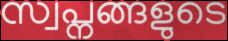
സ്വപ്നങ്ങളുടെ